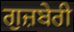
ਗੁਜ਼ਬੇਰੀ